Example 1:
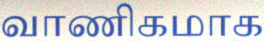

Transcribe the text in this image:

வாணிகமாக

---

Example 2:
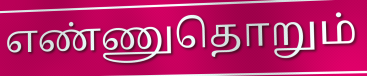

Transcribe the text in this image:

எண்ணுதொறும்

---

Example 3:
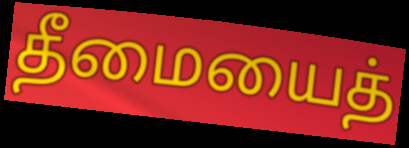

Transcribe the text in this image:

தீமையைத்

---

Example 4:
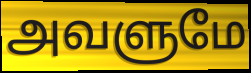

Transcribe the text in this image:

அவளுமே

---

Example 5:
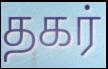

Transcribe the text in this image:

தகர்